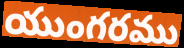
యుంగరము